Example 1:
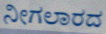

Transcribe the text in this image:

ನೀಗಲಾರದ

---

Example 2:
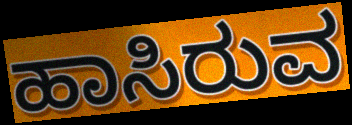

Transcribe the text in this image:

ಹಾಸಿರುವ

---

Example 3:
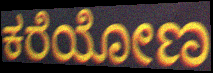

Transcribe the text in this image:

ಕರೆಯೋಣ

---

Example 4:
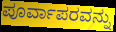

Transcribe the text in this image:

ಪೂರ್ವಾಪರವನ್ನು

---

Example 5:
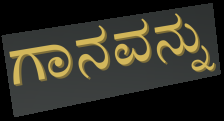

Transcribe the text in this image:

ಗಾನವನ್ನು